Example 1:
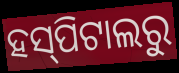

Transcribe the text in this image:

ହସ୍‌ପିଟାଲରୁ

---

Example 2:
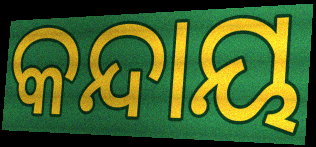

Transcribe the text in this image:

କନ୍ଦାୟ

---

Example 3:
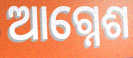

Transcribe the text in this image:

ଆଗ୍ନେଶ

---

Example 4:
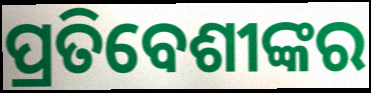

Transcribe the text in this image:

ପ୍ରତିବେଶୀଙ୍କର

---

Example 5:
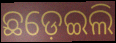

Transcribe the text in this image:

ଛଡ଼େଇଲି